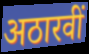
अठारवीं